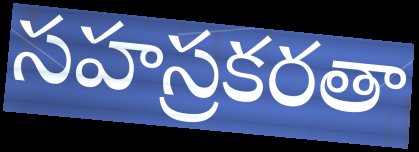
సహస్రకరతా